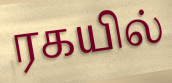
ரகயில்